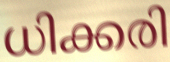
ധിക്കരി